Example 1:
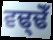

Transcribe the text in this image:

ਵਢ੍ਢੋਁ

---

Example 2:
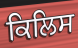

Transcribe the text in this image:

ਕਿਲਿਸ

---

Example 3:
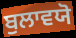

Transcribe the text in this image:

ਬੁਲਾਵਯੋ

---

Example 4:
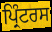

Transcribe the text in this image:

ਪ੍ਰਿੰਟਰਸ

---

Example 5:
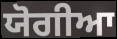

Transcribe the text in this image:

ਯੋਗੀਆ